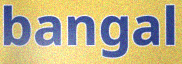
bangal